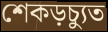
শেকড়চ্যুত